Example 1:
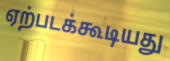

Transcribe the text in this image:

ஏற்படக்கூடியது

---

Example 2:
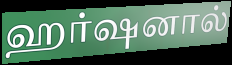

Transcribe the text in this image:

ஹர்ஷனால்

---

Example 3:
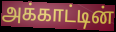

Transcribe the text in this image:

அக்காட்டின்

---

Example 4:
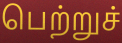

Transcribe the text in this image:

பெற்றுச்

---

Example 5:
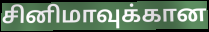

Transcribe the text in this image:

சினிமாவுக்கான